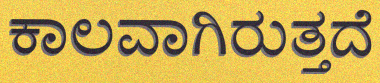
ಕಾಲವಾಗಿರುತ್ತದೆ